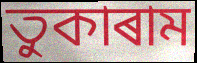
তুকাৰাম